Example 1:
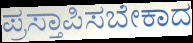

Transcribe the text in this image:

ಪ್ರಸ್ತಾಪಿಸಬೇಕಾದ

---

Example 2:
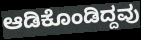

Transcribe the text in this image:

ಆಡಿಕೊಂಡಿದ್ದವು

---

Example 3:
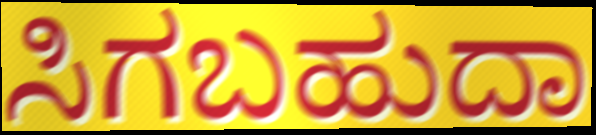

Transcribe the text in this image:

ಸಿಗಬಹುದಾ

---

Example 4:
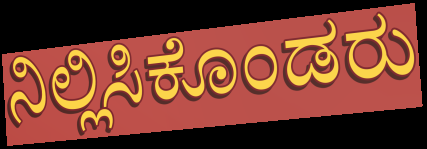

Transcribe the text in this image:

ನಿಲ್ಲಿಸಿಕೊಂಡರು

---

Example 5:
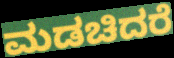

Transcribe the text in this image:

ಮಡಚಿದರೆ